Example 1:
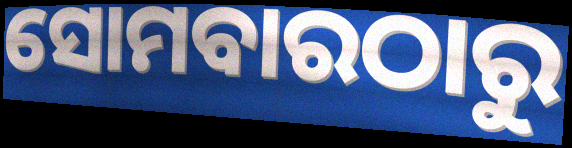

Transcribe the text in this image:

ସୋମବାରଠାରୁ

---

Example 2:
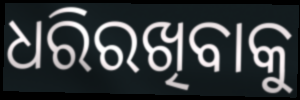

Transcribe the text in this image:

ଧରିରଖିବାକୁ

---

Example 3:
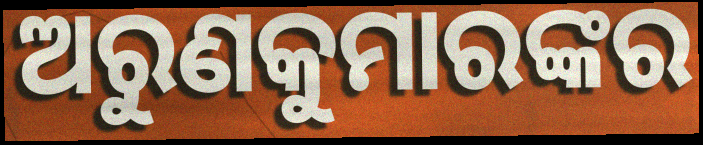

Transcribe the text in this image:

ଅରୁଣକୁମାରଙ୍କର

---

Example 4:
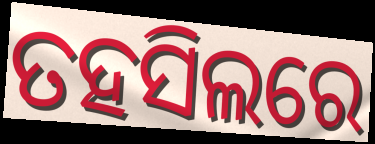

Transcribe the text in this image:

ତହସିଲରେ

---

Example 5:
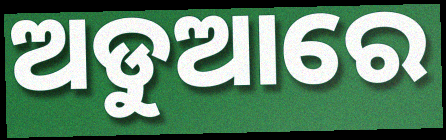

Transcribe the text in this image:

ଅଡୁଆରେ